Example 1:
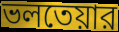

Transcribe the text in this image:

ভলতেয়ার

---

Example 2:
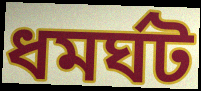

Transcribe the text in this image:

ধমর্ঘট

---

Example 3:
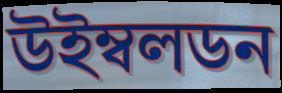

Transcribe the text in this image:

উইম্বলডন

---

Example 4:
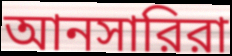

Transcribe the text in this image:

আনসারিরা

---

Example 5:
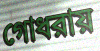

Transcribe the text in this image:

গোধরায়